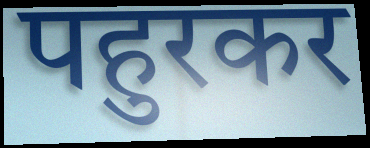
पहुरकर